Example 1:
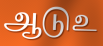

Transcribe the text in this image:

ஆடுஉ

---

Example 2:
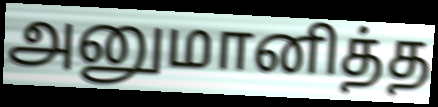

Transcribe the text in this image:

அனுமானித்த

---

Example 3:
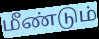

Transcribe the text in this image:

மீண்டும்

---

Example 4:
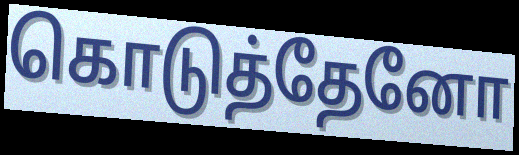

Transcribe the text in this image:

கொடுத்தேனோ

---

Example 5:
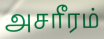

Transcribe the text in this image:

அசரீரம்